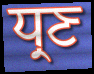
ਧ੍ਰਣ